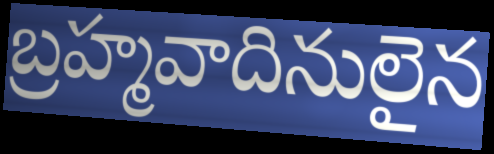
బ్రహ్మవాదినులైన